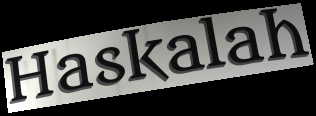
Haskalah